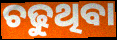
ଚଢୁଥିବା